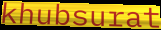
khubsurat